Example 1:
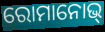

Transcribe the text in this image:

ରୋମାନୋଭ୍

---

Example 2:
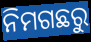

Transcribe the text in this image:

ନିମଗଛରୁ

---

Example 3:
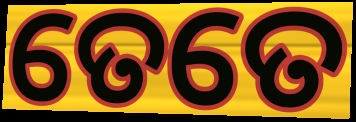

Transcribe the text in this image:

ତେତେ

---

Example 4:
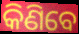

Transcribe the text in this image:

କିଣିବେ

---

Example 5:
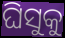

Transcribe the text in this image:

ଘିସୁକୁ